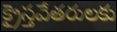
క్రైస్తవేతరులకు